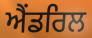
ਐਂਡਰਿਲ